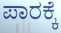
ಪಾರಕ್ಕೆ